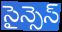
సైన్సెస్